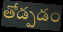
తోడ్పడం